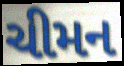
ચીમન